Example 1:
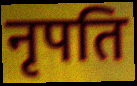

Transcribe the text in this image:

नृपति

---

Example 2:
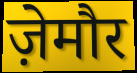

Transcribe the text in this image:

ज़ेमौर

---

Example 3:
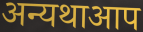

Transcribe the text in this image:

अन्यथाआप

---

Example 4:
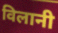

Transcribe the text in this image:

विलानी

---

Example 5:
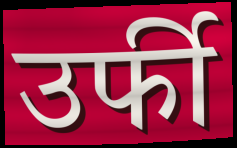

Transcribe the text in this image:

उर्फी